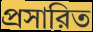
প্রসারিত